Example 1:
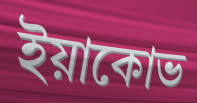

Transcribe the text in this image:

ইয়াকোভ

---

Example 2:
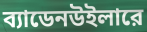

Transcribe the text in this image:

ব্যাডেনউইলারে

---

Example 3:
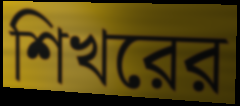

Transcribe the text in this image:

শিখরের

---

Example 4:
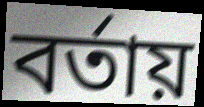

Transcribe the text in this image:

বর্তায়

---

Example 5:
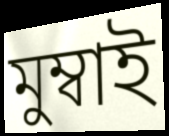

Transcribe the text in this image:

মুম্বাই